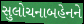
સુલોચનાબહેનને